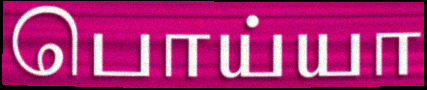
பொய்யா